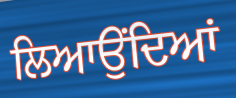
ਲਿਆਉਂਦਿਆਂ